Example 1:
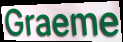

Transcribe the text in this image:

Graeme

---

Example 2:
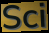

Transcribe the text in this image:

Sci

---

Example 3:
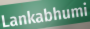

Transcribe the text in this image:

Lankabhumi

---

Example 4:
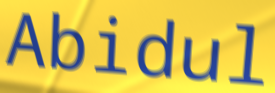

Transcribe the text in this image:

Abidul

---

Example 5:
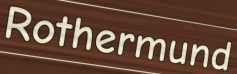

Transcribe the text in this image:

Rothermund